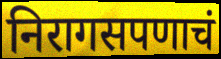
निरागसपणाचं